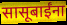
सासूबाईंना